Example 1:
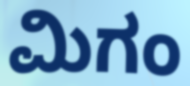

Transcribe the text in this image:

ಮಿಗಂ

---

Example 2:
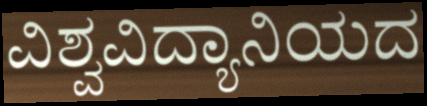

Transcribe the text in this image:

ವಿಶ್ವವಿದ್ಯಾನಿಯದ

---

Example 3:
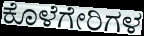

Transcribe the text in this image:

ಕೊಳೆಗೇರಿಗಳ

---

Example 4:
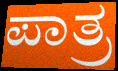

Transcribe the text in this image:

ಪಾತ್ರ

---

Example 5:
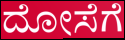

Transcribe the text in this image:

ದೋಸೆಗೆ